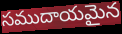
సముదాయమైన